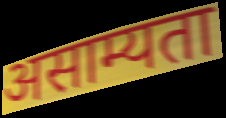
असाम्यता